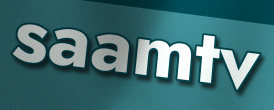
saamtv